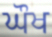
ਘੌਖ